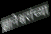
ज्ञानेश्वरांच्या